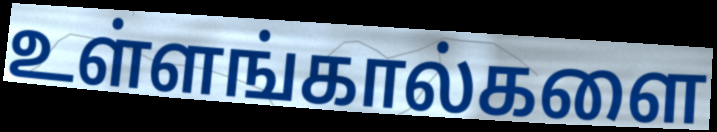
உள்ளங்கால்களை